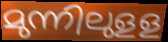
മുന്നിലുളള